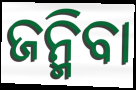
ଜନ୍ମିବା